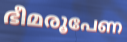
ഭീമരൂപേണ